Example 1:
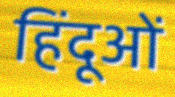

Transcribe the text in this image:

हिंदूओं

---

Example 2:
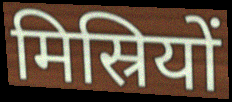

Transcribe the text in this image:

मिस्रियों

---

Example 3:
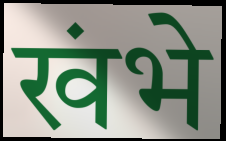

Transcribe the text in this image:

खंभे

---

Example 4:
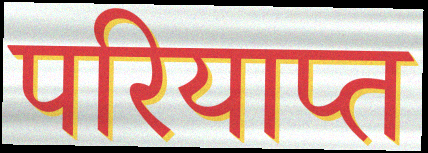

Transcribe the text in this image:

परियाप्त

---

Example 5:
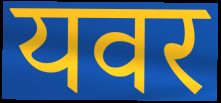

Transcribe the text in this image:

यवर